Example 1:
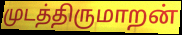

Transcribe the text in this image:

முடத்திருமாறன்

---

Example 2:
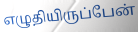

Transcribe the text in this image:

எழுதியிருப்பேன்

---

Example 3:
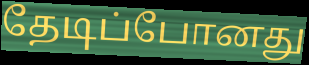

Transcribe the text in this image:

தேடிப்போனது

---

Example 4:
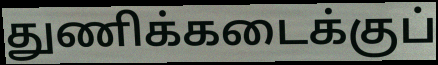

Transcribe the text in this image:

துணிக்கடைக்குப்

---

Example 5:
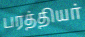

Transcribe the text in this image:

பரத்தியர்